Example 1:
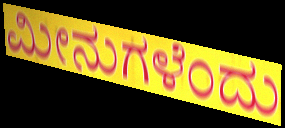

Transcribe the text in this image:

ಮೀನುಗಳೆಂದು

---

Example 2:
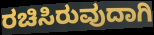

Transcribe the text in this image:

ರಚಿಸಿರುವುದಾಗಿ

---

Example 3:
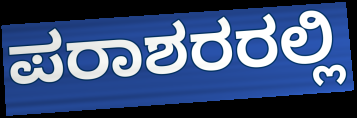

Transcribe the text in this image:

ಪರಾಶರರಲ್ಲಿ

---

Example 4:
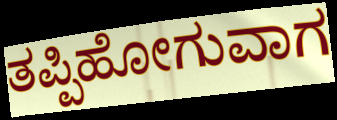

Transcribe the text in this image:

ತಪ್ಪಿಹೋಗುವಾಗ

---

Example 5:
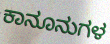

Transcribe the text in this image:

ಕಾನೂನುಗಳ